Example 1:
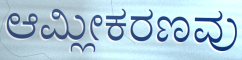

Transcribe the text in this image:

ಆಮ್ಲೀಕರಣವು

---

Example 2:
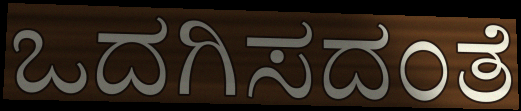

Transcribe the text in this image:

ಒದಗಿಸದಂತೆ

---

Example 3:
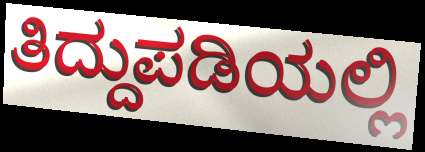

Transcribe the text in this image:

ತಿದ್ದುಪಡಿಯಲ್ಲಿ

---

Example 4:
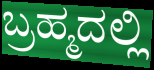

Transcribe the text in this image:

ಬ್ರಹ್ಮದಲ್ಲಿ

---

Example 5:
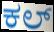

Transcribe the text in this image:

ಕಲ್